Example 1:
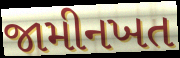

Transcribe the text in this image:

જામીનખત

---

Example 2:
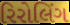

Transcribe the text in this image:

રિરોલિંગ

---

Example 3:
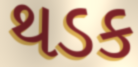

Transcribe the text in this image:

થડક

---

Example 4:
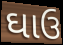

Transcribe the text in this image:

ઘાઉ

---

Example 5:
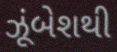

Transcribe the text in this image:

ઝૂંબેશથી